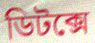
ডিটক্সে